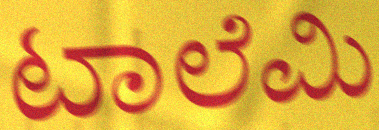
ಟಾಲೆಮಿ